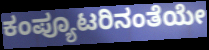
ಕಂಪ್ಯೂಟರಿನಂತೆಯೇ